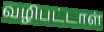
வழிபட்டாள்